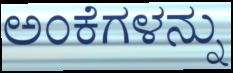
ಅಂಕೆಗಳನ್ನು